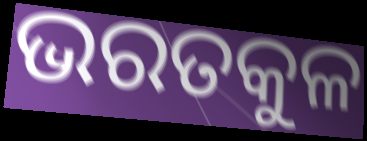
ଭରତକୁଳ